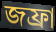
জফ্রা